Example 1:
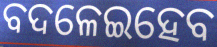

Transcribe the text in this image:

ବଦଳେଇହେବ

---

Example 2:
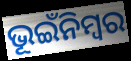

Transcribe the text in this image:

ଭୂଇଁନିମ୍ବର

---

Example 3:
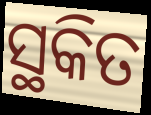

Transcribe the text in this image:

ସ୍ଥକିତ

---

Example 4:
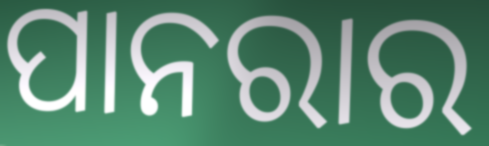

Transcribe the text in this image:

ପାନରାର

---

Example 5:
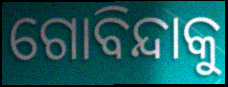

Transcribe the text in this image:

ଗୋବିନ୍ଦାକୁ